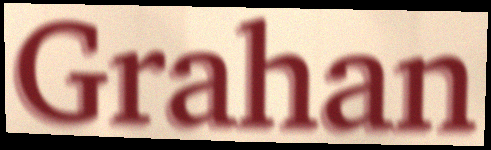
Grahan